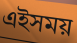
এইসময়